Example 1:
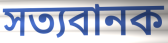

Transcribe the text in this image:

সত্যবানক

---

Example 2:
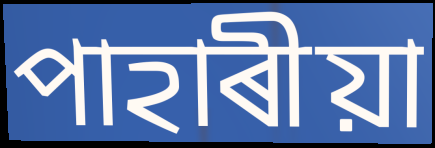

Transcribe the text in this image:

পাহাৰীয়া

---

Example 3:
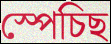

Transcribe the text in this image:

স্পেচিছ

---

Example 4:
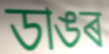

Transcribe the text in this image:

ডাঙৰ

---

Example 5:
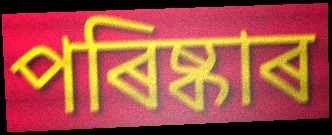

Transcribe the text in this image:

পৰিষ্কাৰ